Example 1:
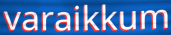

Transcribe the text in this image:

varaikkum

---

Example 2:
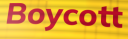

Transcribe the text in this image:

Boycott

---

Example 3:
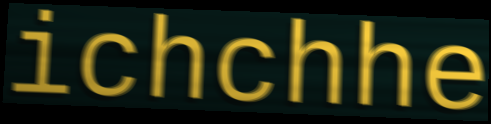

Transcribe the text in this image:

ichchhe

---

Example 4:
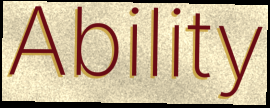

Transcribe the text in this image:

Ability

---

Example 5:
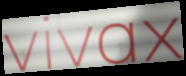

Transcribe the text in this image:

vivax